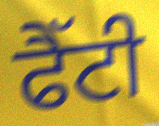
ਫੈੱਟੀ